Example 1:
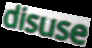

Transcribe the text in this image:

disuse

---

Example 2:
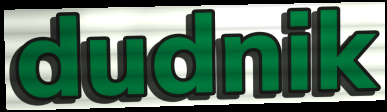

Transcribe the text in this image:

dudnik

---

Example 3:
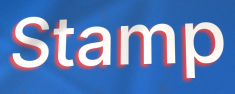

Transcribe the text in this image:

Stamp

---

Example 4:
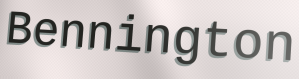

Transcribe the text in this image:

Bennington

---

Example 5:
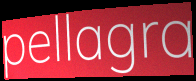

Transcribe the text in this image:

pellagra